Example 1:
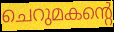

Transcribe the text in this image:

ചെറുമകന്റെ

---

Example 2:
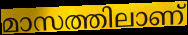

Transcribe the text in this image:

മാസത്തിലാണ്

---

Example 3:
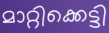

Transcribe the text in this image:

മാറ്റിക്കെട്ടി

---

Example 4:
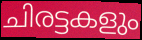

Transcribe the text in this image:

ചിരട്ടകളും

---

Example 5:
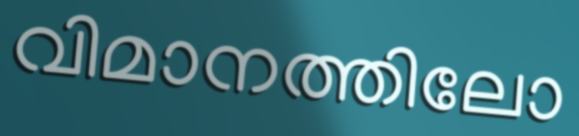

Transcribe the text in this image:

വിമാനത്തിലോ